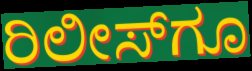
ರಿಲೀಸ್‌ಗೂ